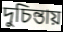
দুচিন্তায়